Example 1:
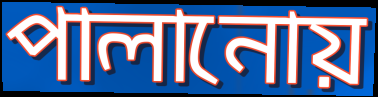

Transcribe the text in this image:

পালানোয়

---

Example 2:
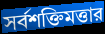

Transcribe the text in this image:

সর্বশক্তিমত্তার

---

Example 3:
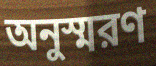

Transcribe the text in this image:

অনুস্মরণ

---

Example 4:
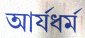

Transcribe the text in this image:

আর্যধর্ম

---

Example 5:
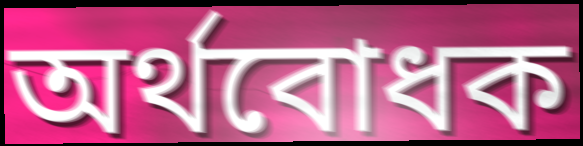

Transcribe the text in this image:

অর্থবোধক